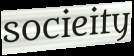
socieity